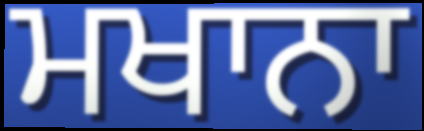
ਮਖਾਨਾ